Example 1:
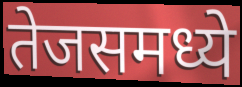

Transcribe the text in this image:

तेजसमध्ये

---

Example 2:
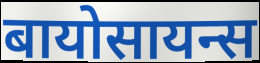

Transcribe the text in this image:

बायोसायन्स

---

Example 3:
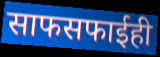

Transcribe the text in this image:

साफसफाईही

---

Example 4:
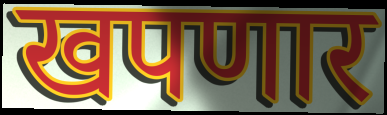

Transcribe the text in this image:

खपणार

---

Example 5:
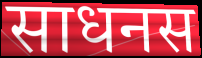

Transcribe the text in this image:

साधनस